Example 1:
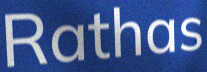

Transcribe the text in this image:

Rathas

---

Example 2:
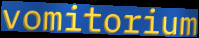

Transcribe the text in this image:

vomitorium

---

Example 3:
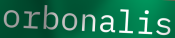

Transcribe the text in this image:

orbonalis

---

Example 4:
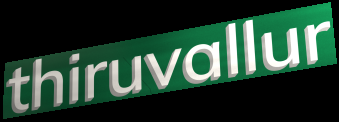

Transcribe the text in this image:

thiruvallur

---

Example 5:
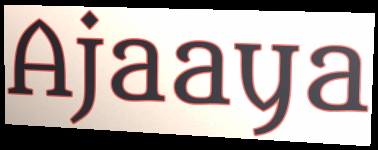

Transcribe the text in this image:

Ajaaya